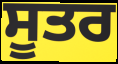
ਸੂਤਰ